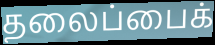
தலைப்பைக்